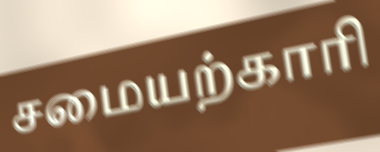
சமையற்காரி